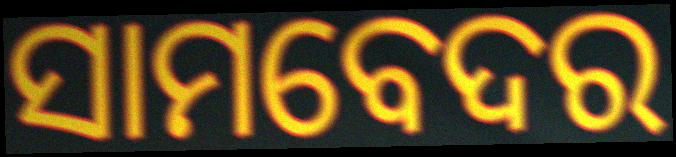
ସାମବେଦର